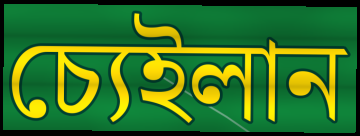
চ্যেইলান